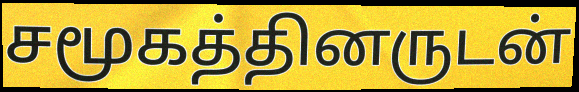
சமூகத்தினருடன்